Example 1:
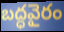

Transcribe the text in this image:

బద్ధవైరం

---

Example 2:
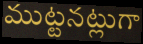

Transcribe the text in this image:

ముట్టనట్లుగా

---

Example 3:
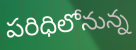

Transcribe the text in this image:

పరిధిలోనున్న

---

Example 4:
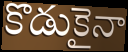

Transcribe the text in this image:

కొడుకైనా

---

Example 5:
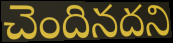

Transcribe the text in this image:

చెందినదని